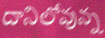
దానిలోవున్న